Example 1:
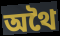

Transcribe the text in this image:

অথৈ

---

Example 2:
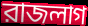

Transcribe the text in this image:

রাজলাগ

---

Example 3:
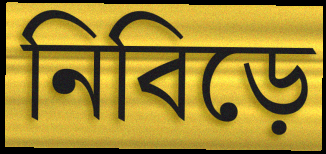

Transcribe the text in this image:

নিবিড়ে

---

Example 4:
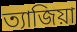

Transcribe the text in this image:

ত্যাজিয়া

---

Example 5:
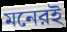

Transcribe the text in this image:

মনেরই